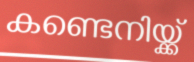
കണ്ടെനിയ്ക്ക്